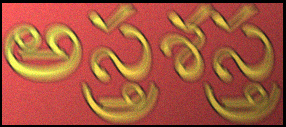
అస్త్రశస్త్ర